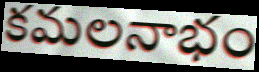
కమలనాభం